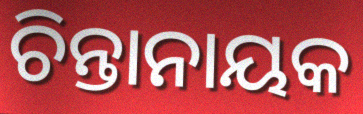
ଚିନ୍ତାନାୟକ